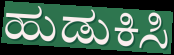
ಹುಡುಕಿಸಿ